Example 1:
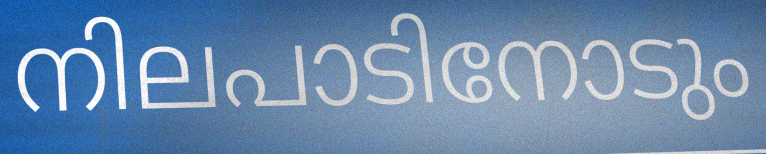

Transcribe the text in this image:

നിലപാടിനോടും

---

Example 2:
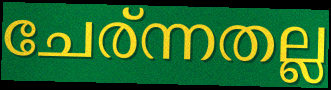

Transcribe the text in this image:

ചേര്ന്നതല്ല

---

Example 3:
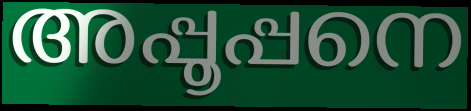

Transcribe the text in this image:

അപ്പൂപ്പനെ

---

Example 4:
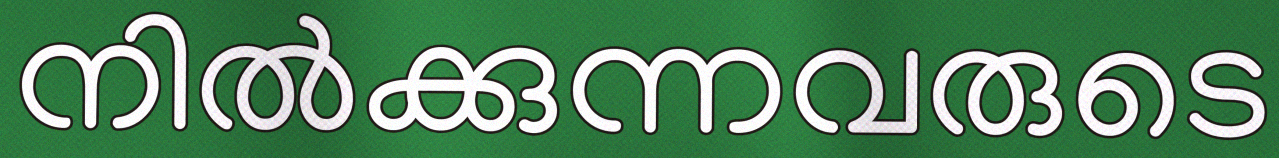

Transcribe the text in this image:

നിൽക്കുന്നവരുടെ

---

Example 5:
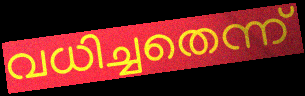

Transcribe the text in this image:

വധിച്ചതെന്ന്